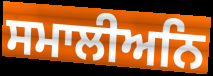
ਸਮਾਲੀਅਨਿ